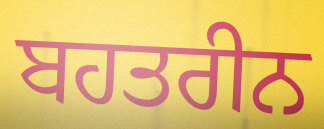
ਬਹਤਰੀਨ